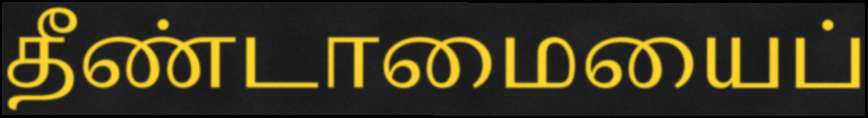
தீண்டாமையைப்